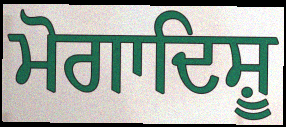
ਮੋਗਾਦਿਸ਼ੂ